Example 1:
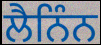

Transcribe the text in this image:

ਲੈਨਿੰਨ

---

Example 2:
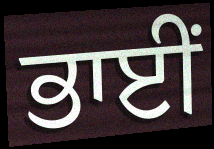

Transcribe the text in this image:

ਭਾਈੰ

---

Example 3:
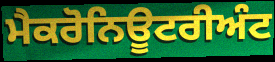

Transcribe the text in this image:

ਮੈਕਰੋਨਿਊਟਰੀਅੰਟ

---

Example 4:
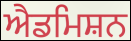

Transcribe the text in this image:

ਐਡਮਿਸ਼ਨ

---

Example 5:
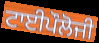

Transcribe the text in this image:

ਟਾਈਪੌਲੋਜੀ